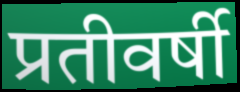
प्रतीवर्षी